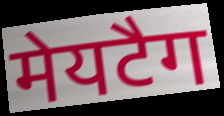
मेयटैग